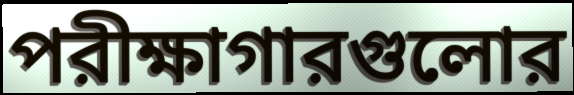
পরীক্ষাগারগুলোর